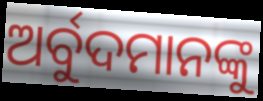
ଅର୍ବୁଦମାନଙ୍କୁ